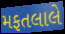
મફતલાલે